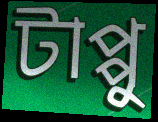
টাপ্পু